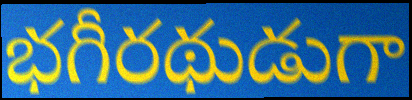
భగీరథుడుగా